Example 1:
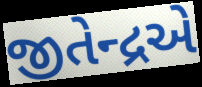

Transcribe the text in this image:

જીતેન્દ્રએ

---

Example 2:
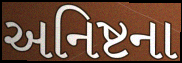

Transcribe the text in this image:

અનિષ્ટના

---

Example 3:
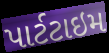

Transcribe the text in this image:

પાર્ટટાઇમ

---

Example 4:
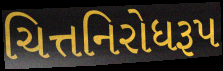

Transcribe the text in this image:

ચિત્તનિરોધરૂપ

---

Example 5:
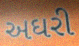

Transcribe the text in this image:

અઘરી